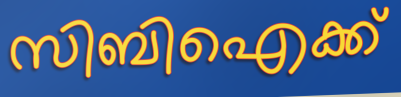
സിബിഐക്ക്